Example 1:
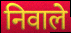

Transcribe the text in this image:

निवाले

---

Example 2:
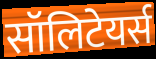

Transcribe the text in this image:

सॉलिटेयर्स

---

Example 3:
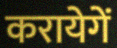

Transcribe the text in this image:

करायेगें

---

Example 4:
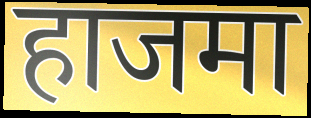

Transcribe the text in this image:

हाजमा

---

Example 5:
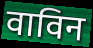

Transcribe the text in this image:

वाविन